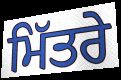
ਮਿੱਤਰੇ